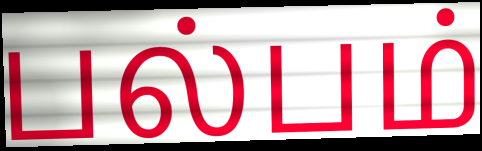
பல்பம்